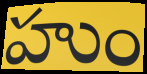
హుం